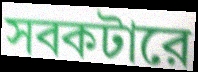
সবকটারে